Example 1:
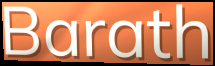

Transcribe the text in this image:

Barath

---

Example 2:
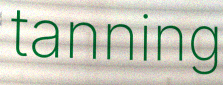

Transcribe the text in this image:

tanning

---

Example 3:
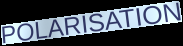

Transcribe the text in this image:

POLARISATION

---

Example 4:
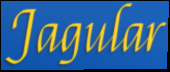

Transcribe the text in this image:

Jagular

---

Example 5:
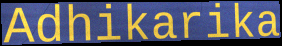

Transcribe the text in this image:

Adhikarika